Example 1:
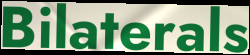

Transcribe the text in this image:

Bilaterals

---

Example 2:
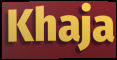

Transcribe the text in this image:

Khaja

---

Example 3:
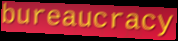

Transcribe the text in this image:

bureaucracy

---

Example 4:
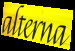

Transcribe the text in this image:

alterna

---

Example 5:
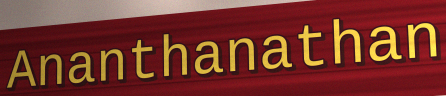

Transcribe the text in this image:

Ananthanathan